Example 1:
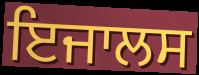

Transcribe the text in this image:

ਇਜਾਲਸ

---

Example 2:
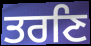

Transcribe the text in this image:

ਤਰਣਿ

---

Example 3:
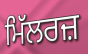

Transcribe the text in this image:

ਮਿੱਲਰਜ਼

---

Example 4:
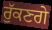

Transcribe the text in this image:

ਰੁੱਕਣਗੇ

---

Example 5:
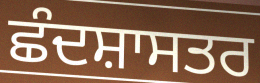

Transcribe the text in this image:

ਛੰਦਸ਼ਾਸਤਰ